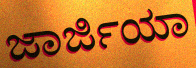
ಜಾರ್ಜಿಯಾ